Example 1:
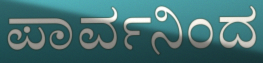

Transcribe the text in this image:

ಪಾರ್ವನಿಂದ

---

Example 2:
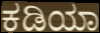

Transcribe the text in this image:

ಕಡಿಯಾ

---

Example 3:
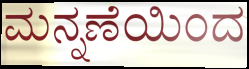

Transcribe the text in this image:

ಮನ್ನಣೆಯಿಂದ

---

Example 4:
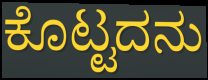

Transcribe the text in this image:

ಕೊಟ್ಟದನು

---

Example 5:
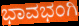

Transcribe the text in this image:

ಭಾವಭಂಗಿ